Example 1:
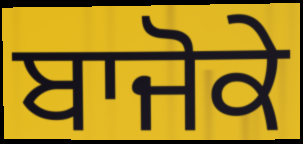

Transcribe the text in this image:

ਬਾਜੋਕੇ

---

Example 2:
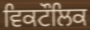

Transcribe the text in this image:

ਵਿਕਟੌਲਿਕ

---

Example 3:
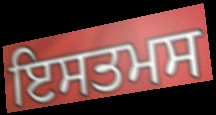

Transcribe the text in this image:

ਇਸਤਮਸ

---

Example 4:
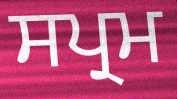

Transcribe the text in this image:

ਸਪ੍ਰਮ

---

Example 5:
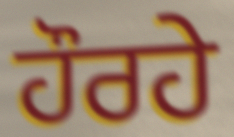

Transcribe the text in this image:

ਹੌਰਹੇ